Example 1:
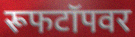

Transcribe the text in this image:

रूफटॉपवर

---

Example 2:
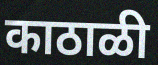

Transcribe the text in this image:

काठाळी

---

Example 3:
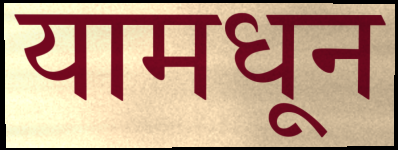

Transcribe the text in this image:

यामधून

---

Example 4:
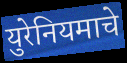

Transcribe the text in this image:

युरेनियमाचे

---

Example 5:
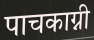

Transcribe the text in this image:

पाचकाग्नी